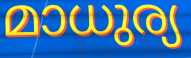
മാധുര്യ